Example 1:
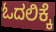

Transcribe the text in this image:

ಓದಲಿಕ್ಕೆ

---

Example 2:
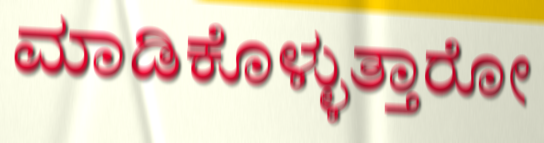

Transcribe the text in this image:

ಮಾಡಿಕೊಳ್ಳುತ್ತಾರೋ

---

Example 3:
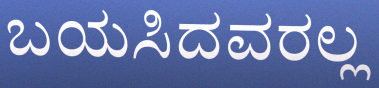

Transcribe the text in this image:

ಬಯಸಿದವರಲ್ಲ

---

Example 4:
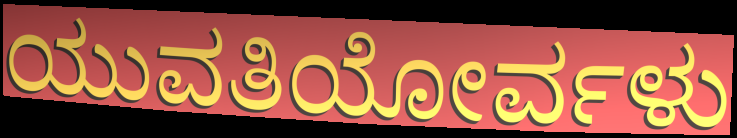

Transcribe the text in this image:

ಯುವತಿಯೋರ್ವಳು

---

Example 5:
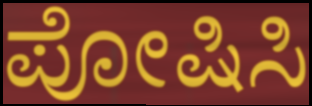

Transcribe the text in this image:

ಪೋಷಿಸಿ